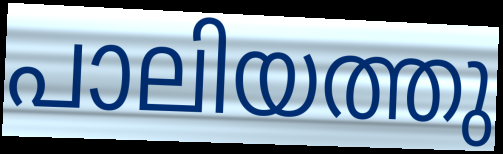
പാലിയത്തു